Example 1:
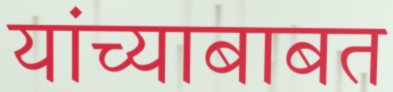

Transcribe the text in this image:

यांच्याबाबत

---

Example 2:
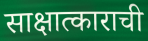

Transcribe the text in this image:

साक्षात्काराची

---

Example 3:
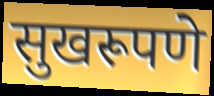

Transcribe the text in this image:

सुखरूपणे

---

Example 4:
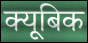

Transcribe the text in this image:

क्यूबिक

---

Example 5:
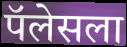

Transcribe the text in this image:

पॅलेसला